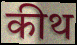
कीथ